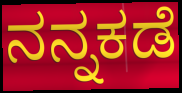
ನನ್ನಕಡೆ